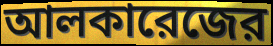
আলকারেজের